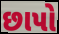
છાપો